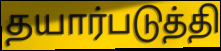
தயார்படுத்தி